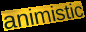
animistic